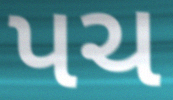
પચ